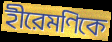
হীরেমণিকে